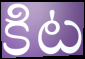
కిట